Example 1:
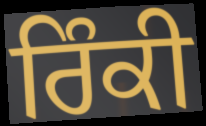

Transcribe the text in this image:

ਰਿੰਕੀ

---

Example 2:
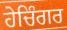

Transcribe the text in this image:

ਹੇਚਿੰਗਰ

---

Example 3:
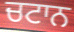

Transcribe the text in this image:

ਚਟਾਨ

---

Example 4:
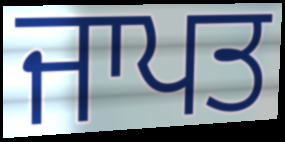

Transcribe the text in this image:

ਜਾਪਤ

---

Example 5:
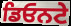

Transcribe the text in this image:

ਡਿਓਨਟੇ